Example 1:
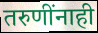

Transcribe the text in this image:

तरुणींनाही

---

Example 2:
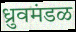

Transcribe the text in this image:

ध्रुवमंडळ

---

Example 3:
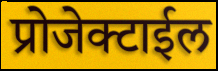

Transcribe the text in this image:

प्रोजेक्टाईल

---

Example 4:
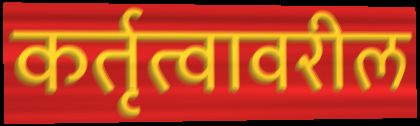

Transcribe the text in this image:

कर्तृत्वावरील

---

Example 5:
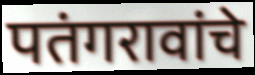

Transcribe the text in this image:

पतंगरावांचे